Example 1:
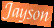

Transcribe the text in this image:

Jayson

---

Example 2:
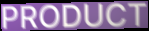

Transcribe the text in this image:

PRODUCT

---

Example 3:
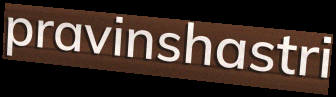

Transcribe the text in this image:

pravinshastri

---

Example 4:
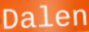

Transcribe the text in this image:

Dalen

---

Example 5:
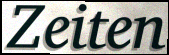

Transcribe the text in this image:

Zeiten